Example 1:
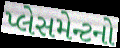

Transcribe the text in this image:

પ્લેસમેન્ટનો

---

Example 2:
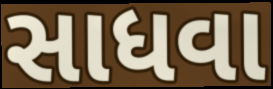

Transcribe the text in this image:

સાધવા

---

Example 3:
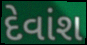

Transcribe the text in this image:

દેવાંશ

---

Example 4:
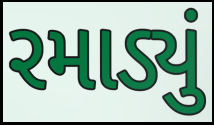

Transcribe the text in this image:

રમાડ્યું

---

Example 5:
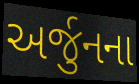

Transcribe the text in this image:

અર્જુનના